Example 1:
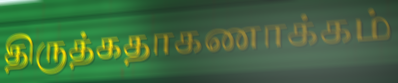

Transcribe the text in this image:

திருத்கதாகணாக்கம்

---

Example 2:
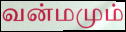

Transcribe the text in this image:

வன்மமும்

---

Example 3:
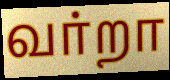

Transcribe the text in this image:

வர்றா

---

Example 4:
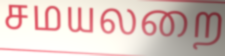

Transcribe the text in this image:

சமயலறை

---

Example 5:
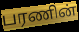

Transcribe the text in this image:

பரணின்